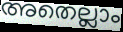
അതെല്ലാം